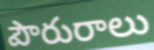
పౌరురాలు